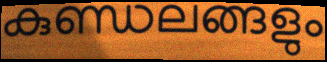
കുണ്ഡലങ്ങളും